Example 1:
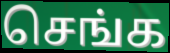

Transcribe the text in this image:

செங்க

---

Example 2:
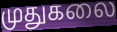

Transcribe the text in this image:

முதுகலை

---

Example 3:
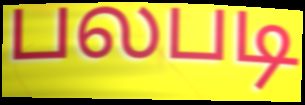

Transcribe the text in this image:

பலபடி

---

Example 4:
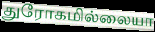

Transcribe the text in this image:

துரோகமில்லையா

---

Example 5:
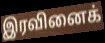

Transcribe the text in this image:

இரவினைக்